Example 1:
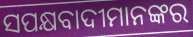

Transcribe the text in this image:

ସପକ୍ଷବାଦୀମାନଙ୍କର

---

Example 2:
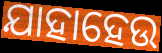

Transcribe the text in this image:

ଯାହାହେଉ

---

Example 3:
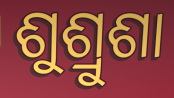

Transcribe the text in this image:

ଶୁଶ୍ରୁଶା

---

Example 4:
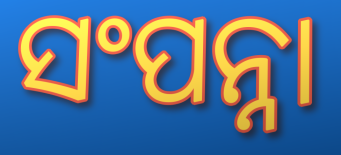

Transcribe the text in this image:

ସଂପନ୍ନା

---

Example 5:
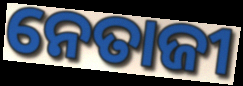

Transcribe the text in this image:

ନେତାଜୀ